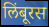
लिंबूरस